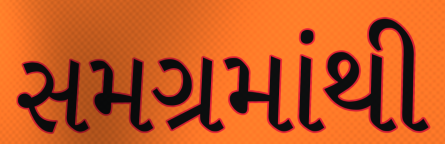
સમગ્રમાંથી